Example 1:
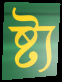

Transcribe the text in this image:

ষ্ট্য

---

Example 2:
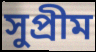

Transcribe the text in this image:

সুপ্রীম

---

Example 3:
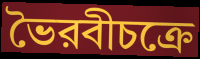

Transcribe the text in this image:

ভৈরবীচক্রে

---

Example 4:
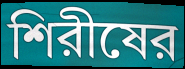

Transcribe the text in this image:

শিরীষের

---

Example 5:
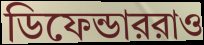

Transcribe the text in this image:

ডিফেন্ডাররাও